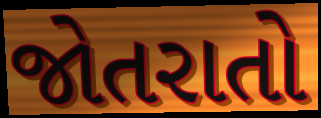
જોતરાતો